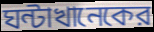
ঘন্টাখানেকের